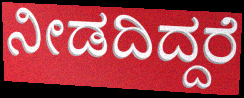
ನೀಡದಿದ್ದರೆ